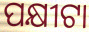
ପକ୍ଷୀଟା